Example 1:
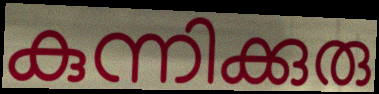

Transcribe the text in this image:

കുന്നിക്കുരു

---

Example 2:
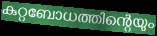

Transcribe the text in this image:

കുറ്റബോധത്തിന്റെയും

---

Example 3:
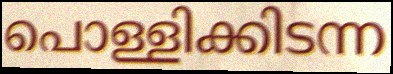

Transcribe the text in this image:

പൊള്ളിക്കിടന്ന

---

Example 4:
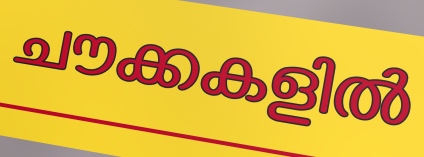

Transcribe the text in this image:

ചൗക്കകളിൽ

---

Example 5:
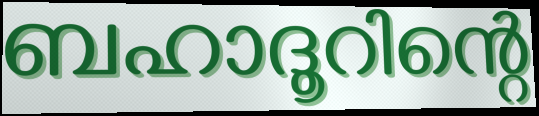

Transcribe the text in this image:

ബഹാദൂറിന്റെ